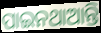
ପାଇନଥାଆନ୍ତି